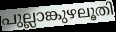
പുല്ലാങ്കുഴലൂതി